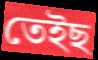
তেইছ